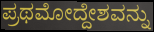
ಪ್ರಥಮೋದ್ದೇಶವನ್ನು